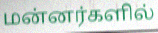
மன்னர்களில்